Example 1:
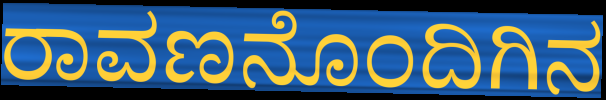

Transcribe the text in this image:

ರಾವಣನೊಂದಿಗಿನ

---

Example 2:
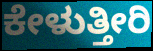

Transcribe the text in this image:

ಕೇಳುತ್ತೀರಿ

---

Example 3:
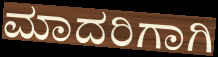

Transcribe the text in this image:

ಮಾದರಿಗಾಗಿ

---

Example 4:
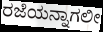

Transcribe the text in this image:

ರಜೆಯನ್ನಾಗಲೀ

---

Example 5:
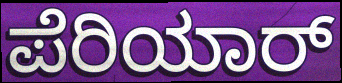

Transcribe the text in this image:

ಪೆರಿಯಾರ್